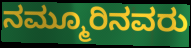
ನಮ್ಮೂರಿನವರು